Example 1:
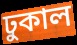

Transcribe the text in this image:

ঢুকাল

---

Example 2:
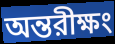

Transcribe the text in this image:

অন্তরীক্ষং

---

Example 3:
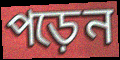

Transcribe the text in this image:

পড়েন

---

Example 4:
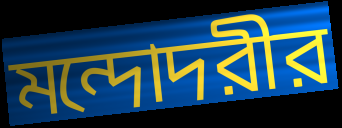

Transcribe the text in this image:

মন্দোদরীর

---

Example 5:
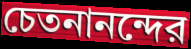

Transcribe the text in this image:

চেতনানন্দের